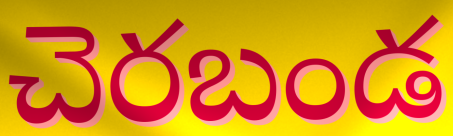
చెరబండ